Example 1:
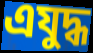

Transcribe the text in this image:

এযুদ্ধ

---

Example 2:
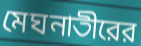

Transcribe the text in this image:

মেঘনাতীরের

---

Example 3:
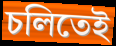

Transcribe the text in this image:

চলিতেই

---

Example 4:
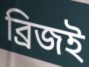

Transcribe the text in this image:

ব্রিজই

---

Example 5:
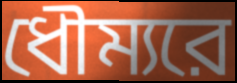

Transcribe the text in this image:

ধৌম্যরে